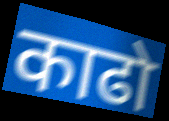
काढो